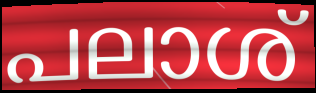
പലാശ്